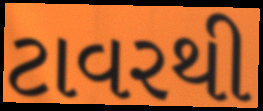
ટાવરથી